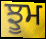
ਝੂਮ